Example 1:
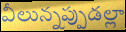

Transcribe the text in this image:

వీలున్నప్పుడల్లా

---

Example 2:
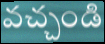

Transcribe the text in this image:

వచ్చండి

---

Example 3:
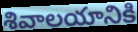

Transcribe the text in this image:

శివాలయానికి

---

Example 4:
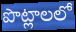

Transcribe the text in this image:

పొట్లాలలో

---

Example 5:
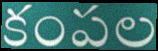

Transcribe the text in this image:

కంపల